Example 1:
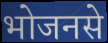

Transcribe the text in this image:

भोजनसे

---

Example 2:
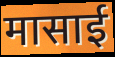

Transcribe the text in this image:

मासाई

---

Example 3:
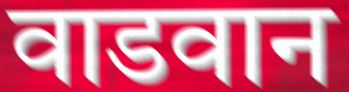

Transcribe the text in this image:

वाडवान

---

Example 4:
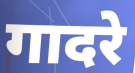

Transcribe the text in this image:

गादरे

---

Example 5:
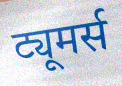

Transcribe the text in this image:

ट्यूमर्स